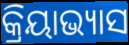
କ୍ରିୟାଭ୍ୟାସ